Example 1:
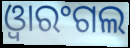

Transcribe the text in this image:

ଓ୍ୱାରଂଗଲ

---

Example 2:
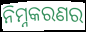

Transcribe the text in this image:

ନିମ୍ନକରଣର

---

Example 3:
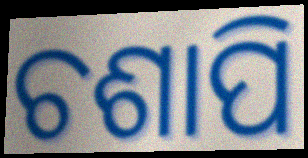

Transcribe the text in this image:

ଚଶାପି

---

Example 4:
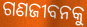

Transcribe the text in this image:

ଗଣଜୀବନକୁ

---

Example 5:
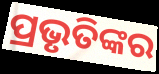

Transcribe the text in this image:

ପ୍ରଭୃତିଙ୍କର